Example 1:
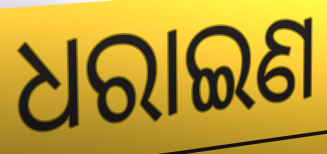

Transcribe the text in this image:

ଧରାଇଣ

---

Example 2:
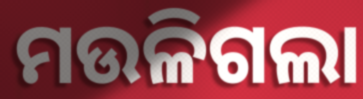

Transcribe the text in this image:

ମଉଳିଗଲା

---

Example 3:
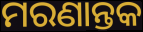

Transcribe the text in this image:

ମରଣାନ୍ତକ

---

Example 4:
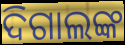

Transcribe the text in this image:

ଦିଗାଲଙ୍କ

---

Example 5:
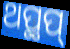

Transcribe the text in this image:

ଥପ୍ଥପ୍